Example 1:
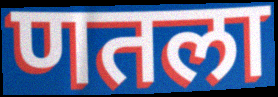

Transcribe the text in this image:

णतला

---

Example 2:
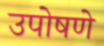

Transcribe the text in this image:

उपोषणे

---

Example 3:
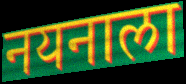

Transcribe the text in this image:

नयनाला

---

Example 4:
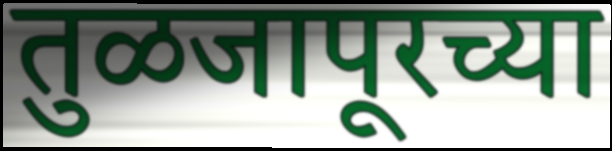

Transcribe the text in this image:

तुळजापूरच्या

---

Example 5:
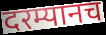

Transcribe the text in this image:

दरम्यानच